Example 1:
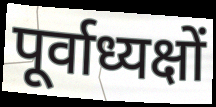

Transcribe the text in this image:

पूर्वाध्यक्षों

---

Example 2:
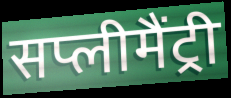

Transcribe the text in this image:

सप्लीमैंट्री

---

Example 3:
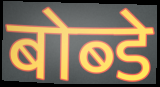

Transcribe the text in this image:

बोब्डे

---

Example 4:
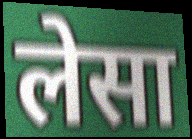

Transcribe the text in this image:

लेसा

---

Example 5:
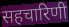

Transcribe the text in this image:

सहचारिणी